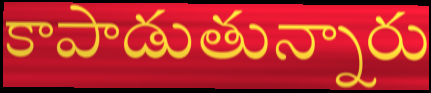
కాపాడుతున్నారు